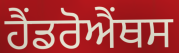
ਹੈਂਡਰੋਐਂਥਸ